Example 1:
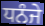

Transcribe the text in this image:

ਧਨੰਜੇ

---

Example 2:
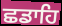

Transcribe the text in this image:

ਛਡਾਹਿ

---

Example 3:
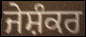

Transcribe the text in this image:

ਜੇਸ਼ੰਕਰ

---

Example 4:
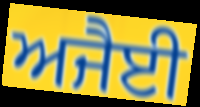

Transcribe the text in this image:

ਅਜੈਈ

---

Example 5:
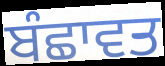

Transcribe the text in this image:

ਬੰਛਾਵਤ